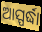
ଆସ୍ପର୍ଦ୍ଧା